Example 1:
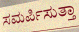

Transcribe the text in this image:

ಸಮರ್ಪಿಸುತ್ತಾ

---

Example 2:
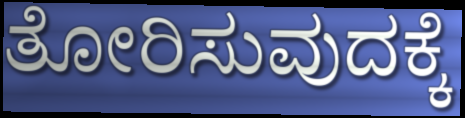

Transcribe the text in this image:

ತೋರಿಸುವುದಕ್ಕೆ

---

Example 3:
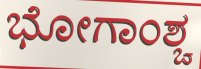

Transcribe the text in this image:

ಭೋಗಾಂಶ್ಚ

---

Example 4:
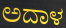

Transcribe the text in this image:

ಅದಾಳ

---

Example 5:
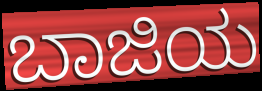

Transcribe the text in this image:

ಬಾಜಿಯ